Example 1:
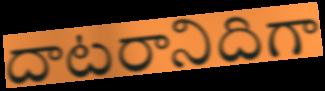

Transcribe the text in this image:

దాటరానిదిగా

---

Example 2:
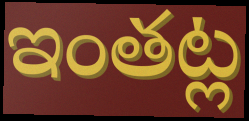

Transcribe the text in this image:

ఇంతట్ల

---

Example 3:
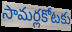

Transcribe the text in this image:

సామర్లకోటకు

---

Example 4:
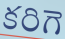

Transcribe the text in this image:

కరిగె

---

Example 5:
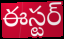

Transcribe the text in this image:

ఈస్టర్